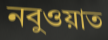
নবুওয়াত